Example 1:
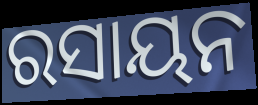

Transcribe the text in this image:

ରସାୟନ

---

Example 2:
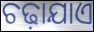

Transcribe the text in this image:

ଚଢ଼ାଯାଏ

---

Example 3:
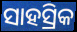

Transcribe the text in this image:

ସାହସ୍ରିକ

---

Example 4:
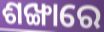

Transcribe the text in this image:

ଶଙ୍ଖାରେ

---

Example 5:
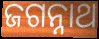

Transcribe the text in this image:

ଜଗନ୍ନାଥ